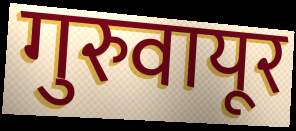
गुरुवायूर